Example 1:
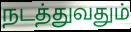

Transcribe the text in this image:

நடத்துவதும்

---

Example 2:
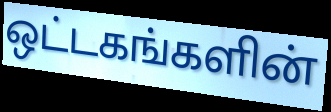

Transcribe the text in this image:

ஒட்டகங்களின்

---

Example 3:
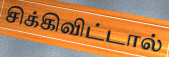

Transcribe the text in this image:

சிக்கிவிட்டால்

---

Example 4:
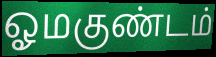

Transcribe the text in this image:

ஓமகுண்டம்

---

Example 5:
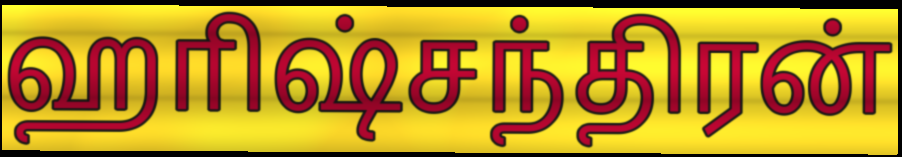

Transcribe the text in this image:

ஹரிஷ்சந்திரன்